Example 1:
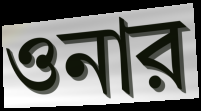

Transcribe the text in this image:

ওনার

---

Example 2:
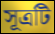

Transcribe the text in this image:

সূত্রটি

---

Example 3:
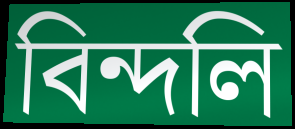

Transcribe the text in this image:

বিন্দলি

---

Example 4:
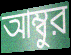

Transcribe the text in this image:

আম্বুর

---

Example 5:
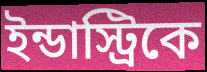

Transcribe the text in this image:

ইন্ডাস্ট্রিকে